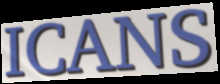
ICANS